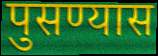
पुसण्यास